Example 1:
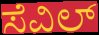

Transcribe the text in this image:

ಸೆವಿಲ್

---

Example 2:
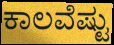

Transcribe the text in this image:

ಕಾಲವೆಷ್ಟು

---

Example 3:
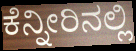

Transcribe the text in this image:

ಕೆನ್ನೀರಿನಲ್ಲಿ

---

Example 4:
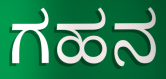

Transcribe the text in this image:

ಗಹನ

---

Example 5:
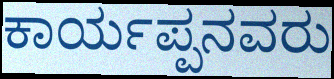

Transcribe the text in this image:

ಕಾರ್ಯಪ್ಪನವರು